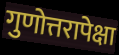
गुणोत्तरापेक्षा